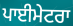
ਪਾਈਮੇਟਰਾ